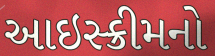
આઇસ્ક્રીમનો